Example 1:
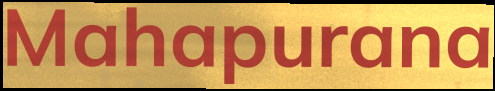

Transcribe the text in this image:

Mahapurana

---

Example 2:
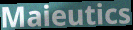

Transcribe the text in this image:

Maieutics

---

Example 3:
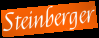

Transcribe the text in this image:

Steinberger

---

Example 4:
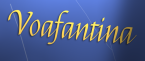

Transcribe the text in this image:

Voafantina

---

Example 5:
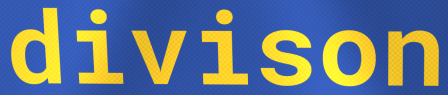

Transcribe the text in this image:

divison